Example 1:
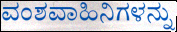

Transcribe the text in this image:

ವಂಶವಾಹಿನಿಗಳನ್ನು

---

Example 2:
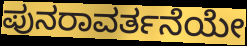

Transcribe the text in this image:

ಪುನರಾವರ್ತನೆಯೇ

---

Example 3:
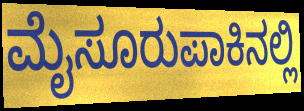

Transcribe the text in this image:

ಮೈಸೂರುಪಾಕಿನಲ್ಲಿ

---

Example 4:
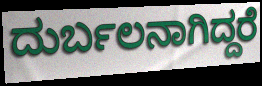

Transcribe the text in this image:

ದುರ್ಬಲನಾಗಿದ್ದರೆ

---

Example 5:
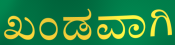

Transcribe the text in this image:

ಖಂಡವಾಗಿ